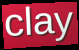
clay